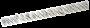
ಕಾಣಿಸಿಕೊಂಡಿರುವುದರಿಂದ